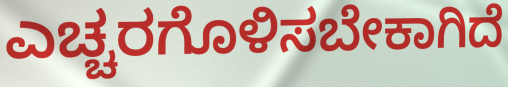
ಎಚ್ಚರಗೊಳಿಸಬೇಕಾಗಿದೆ